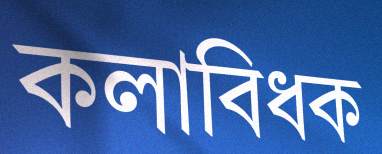
কলাবিধক